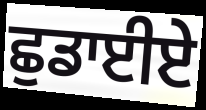
ਛੁਡਾਈਏ